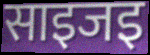
साइजइ